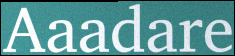
Aaadare